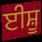
ਈਸ਼ੂ